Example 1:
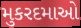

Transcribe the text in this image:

મુકરદમાઓ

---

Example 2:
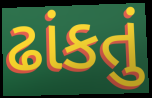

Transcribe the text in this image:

ઢાંકતું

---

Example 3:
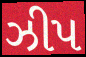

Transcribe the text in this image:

ઝીપ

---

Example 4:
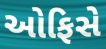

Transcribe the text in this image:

ઓફિસે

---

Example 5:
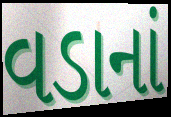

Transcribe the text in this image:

વડાનાં